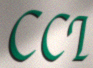
CCI